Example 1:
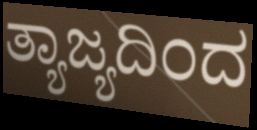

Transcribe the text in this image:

ತ್ಯಾಜ್ಯದಿಂದ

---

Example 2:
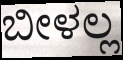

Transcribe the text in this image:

ಬೀಳಲ್ಲ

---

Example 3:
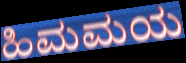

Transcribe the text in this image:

ಹಿಮಮಯ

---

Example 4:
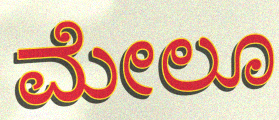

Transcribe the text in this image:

ಮೇಲೂ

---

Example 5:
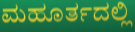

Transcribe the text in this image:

ಮಹೂರ್ತದಲ್ಲಿ